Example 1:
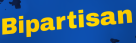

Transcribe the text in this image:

Bipartisan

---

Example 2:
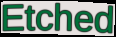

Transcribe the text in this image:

Etched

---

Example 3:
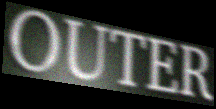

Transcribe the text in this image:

OUTER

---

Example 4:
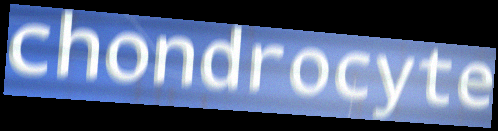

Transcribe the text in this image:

chondrocyte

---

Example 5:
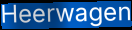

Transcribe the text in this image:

Heerwagen